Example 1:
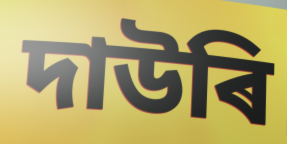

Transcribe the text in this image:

দাউৰি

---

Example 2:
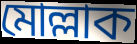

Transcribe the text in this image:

মোল্লাক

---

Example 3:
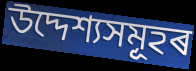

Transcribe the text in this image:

উদ্দেশ্যসমূহৰ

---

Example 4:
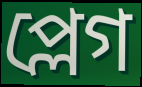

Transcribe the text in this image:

প্লেগ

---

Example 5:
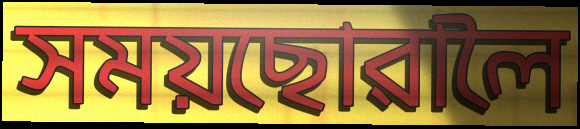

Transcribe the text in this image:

সময়ছোৱালৈ